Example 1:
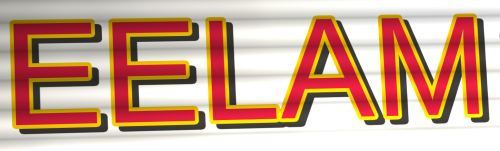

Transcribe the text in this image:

EELAM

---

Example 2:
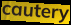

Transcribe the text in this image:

cautery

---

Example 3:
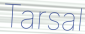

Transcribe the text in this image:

Tarsal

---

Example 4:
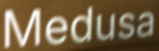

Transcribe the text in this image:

Medusa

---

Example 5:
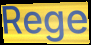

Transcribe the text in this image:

Rege